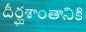
దీర్ఘశాంతానికి